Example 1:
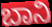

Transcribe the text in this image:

ಬಾನಿ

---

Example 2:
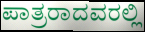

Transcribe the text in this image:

ಪಾತ್ರರಾದವರಲ್ಲಿ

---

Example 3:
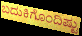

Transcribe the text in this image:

ಬದುಕಿಗೊಂದಿಷ್ಟು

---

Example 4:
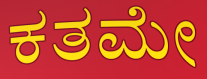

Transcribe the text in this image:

ಕತಮೇ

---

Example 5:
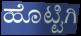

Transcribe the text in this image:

ಹೊಟ್ಟಿಗಿ